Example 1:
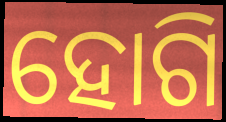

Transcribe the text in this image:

ହୋଗି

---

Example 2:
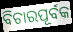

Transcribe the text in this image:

ବିଚାରପୂର୍ବକ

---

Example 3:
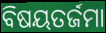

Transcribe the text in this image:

ବିଷୟତର୍ଜମା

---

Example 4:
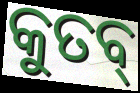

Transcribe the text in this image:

କୁତବ୍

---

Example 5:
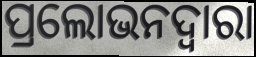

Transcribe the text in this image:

ପ୍ରଲୋଭନଦ୍ୱାରା